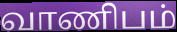
வாணிபம்